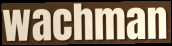
wachman